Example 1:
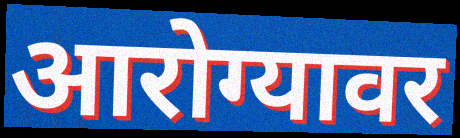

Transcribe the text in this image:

आरोग्यावर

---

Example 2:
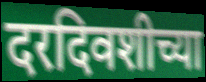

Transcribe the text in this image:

दरदिवशीच्या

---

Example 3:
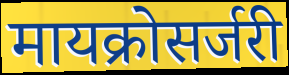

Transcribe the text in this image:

मायक्रोसर्जरी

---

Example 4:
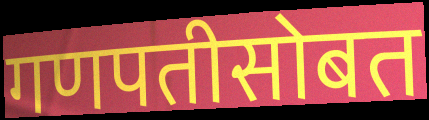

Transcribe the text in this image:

गणपतीसोबत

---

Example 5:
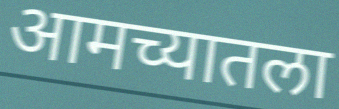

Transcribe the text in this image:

आमच्यातला